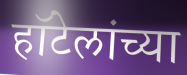
हॉटेलांच्या